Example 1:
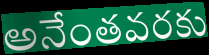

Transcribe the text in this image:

అనేంతవరకు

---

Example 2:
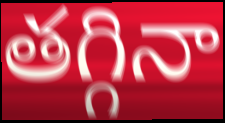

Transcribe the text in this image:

తగ్గినా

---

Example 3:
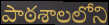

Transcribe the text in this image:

పాఠశాలలోని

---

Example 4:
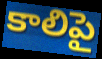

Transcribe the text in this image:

కాలిపై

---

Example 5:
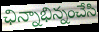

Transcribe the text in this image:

ఛిన్నాభిన్నంచేసి